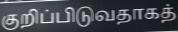
குறிப்பிடுவதாகத்